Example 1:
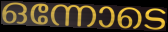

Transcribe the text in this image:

ഒന്നോടെ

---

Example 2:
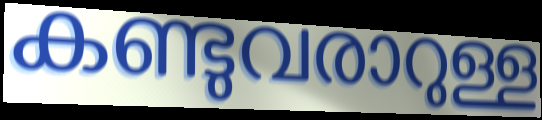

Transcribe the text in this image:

കണ്ടുവരാറുള്ള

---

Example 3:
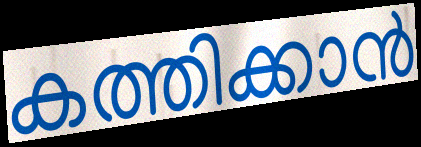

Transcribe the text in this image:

കത്തിക്കാൻ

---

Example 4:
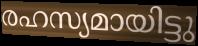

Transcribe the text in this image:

രഹസ്യമായിട്ടു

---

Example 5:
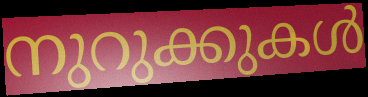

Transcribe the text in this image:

നുറുക്കുകൾ